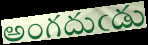
అంగదుఁడు